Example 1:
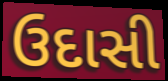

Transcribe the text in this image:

ઉદાસી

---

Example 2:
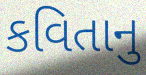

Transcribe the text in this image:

કવિતાનુ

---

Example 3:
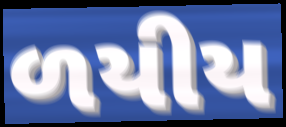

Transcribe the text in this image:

ળયીય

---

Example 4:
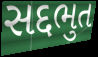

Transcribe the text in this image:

સદ્દભુત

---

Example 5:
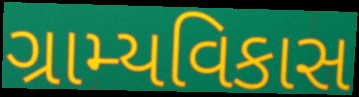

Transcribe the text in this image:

ગ્રામ્યવિકાસ